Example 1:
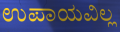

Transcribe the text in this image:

ಉಪಾಯವಿಲ್ಲ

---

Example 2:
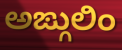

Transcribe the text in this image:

ಅಙ್ಗುಲಿಂ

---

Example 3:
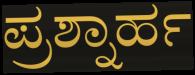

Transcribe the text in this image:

ಪ್ರಶ್ನಾರ್ಹ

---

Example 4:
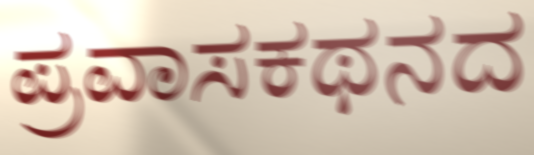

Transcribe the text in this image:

ಪ್ರವಾಸಕಥನದ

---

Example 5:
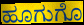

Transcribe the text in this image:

ಹೂಗುಗೊ